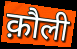
क़ौली